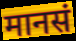
मानसं